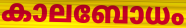
കാലബോധം